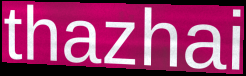
thazhai